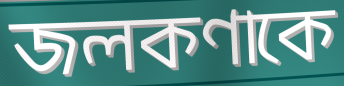
জলকণাকে